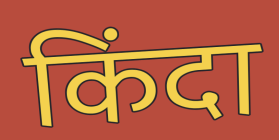
किंदा